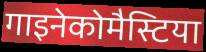
गाइनेकोमैस्टिया